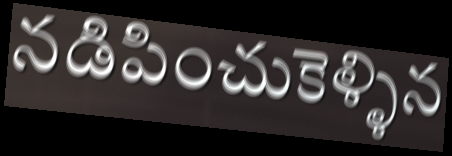
నడిపించుకెళ్ళిన